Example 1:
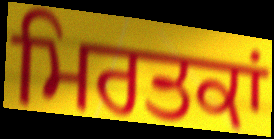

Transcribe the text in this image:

ਮਿਰਤਕਾਂ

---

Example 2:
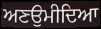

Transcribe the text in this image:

ਅਣਉਮੀਦਿਆ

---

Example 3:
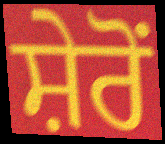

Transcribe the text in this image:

ਸ਼ੇਰੋਂ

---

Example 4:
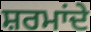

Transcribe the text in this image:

ਸ਼ਰਮਾਂਦੇ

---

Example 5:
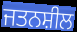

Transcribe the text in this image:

ਜਤਨਸ਼ੀਲ